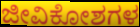
ಜೀವಿಕೋಶಗಳ